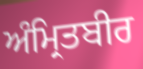
ਅੰਮ੍ਰਿਤਬੀਰ